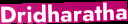
Dridharatha